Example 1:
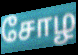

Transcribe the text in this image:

சோழ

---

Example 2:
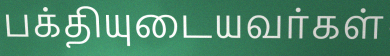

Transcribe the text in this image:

பக்தியுடையவர்கள்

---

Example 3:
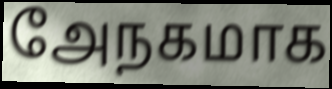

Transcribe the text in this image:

அேநகமாக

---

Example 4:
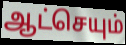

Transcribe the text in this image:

ஆட்செயும்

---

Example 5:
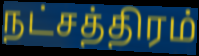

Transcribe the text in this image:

நட்சத்திரம்